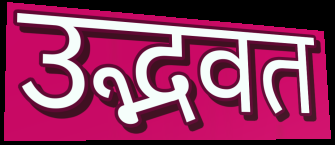
उद्भवत